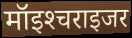
मॉइश्‍चराइजर